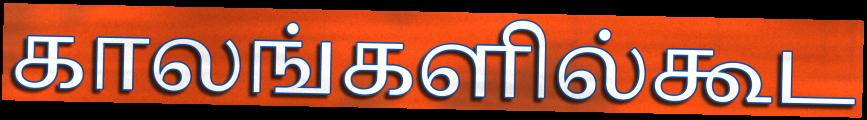
காலங்களில்கூட